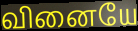
வினையே